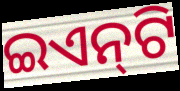
ଇଏନ୍‌ଟି